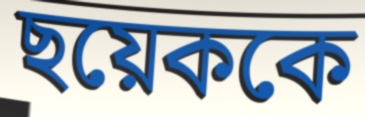
ছয়েককে